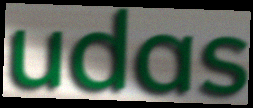
udas